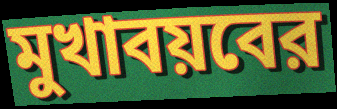
মুখাবয়বের